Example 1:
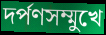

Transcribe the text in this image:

দর্পণসম্মুখে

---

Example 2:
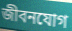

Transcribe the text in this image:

জীবনযোগ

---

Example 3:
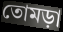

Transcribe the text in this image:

তোমড়া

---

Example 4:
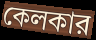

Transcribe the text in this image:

কেলকার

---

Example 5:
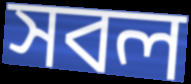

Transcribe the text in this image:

সবল